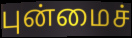
புன்மைச்